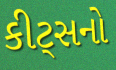
કીટ્સનો